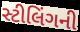
સ્ટીલિંગની